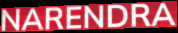
NARENDRA